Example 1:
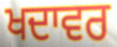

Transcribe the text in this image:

ਖਦਾਵਰ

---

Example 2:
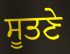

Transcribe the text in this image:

ਸੂਤਣੇ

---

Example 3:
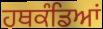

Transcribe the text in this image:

ਹਥਕੰਡਿਆਂ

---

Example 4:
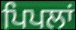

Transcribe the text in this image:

ਪਿਪਲਾਂ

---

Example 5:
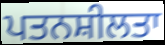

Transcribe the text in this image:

ਪਤਨਸ਼ੀਲਤਾ